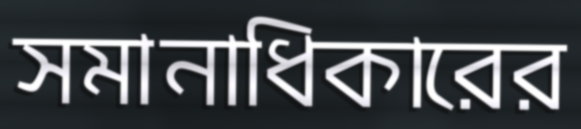
সমানাধিকারের